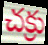
చక్రు